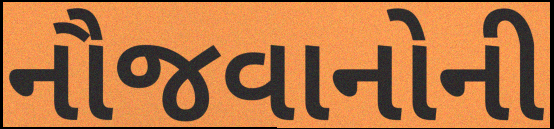
નૌજવાનોની